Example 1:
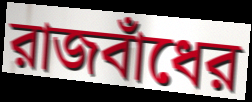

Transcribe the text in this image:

রাজবাঁধের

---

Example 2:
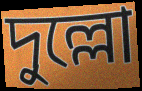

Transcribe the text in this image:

দুল্লো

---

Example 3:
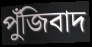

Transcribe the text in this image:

পুঁজিবাদ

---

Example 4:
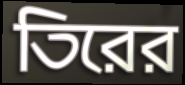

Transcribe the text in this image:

তিরের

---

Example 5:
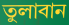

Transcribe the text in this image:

তুলাবান